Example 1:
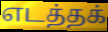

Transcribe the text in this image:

எடத்தக்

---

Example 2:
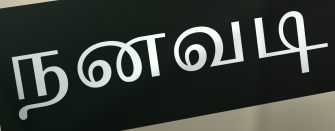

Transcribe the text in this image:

நனவடி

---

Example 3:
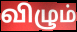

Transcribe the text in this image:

விழும்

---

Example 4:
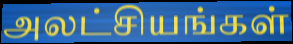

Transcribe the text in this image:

அலட்சியங்கள்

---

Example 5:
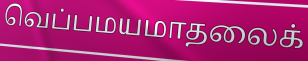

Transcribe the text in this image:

வெப்பமயமாதலைக்